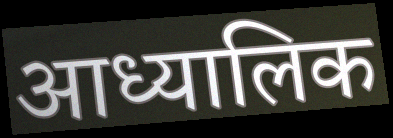
आध्यालिक